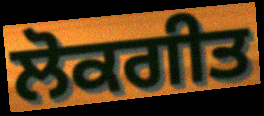
ਲੋਕਗੀਤ